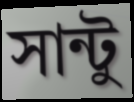
সান্টু